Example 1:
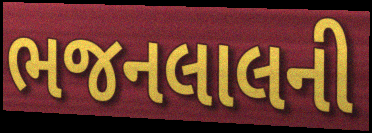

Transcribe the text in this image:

ભજનલાલની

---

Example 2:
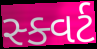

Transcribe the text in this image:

સ્ક્વર્ટ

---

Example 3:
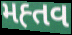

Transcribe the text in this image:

મહ્તવ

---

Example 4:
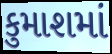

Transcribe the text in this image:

કુમાશમાં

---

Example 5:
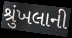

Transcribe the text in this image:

શ્રુંખલાની